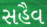
સહૈવ